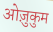
ओज़ुकुम